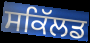
ਸਕਿੱਲਡ